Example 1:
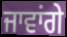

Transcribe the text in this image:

ਜਾਵਾਂਗੇ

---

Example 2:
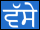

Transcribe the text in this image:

ਵੱਸੇ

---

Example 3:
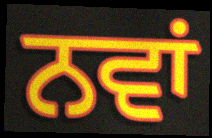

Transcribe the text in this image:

ਨਵਾਂ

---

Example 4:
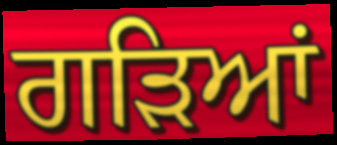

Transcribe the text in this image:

ਗੜਿਆਂ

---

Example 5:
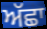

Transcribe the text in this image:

ਅੱਛਾ